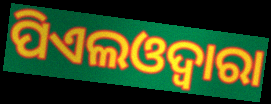
ପିଏଲଓଦ୍ୱାରା